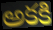
అకకి